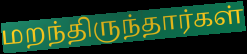
மறந்திருந்தார்கள்